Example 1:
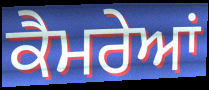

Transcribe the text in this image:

ਕੈਮਰੇਆਂ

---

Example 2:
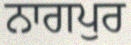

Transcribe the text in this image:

ਨਾਗਪੁਰ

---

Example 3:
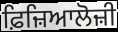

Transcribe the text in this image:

ਫ਼ਿਜ਼ਿਆਲੋਜ਼ੀ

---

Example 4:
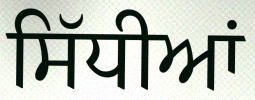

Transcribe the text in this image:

ਸਿੱਧੀਆਂ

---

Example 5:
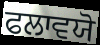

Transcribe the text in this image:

ਫਲਾਵਯੋ